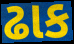
ઢાક